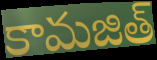
కామజిత్